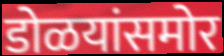
डोळयांसमोर